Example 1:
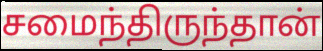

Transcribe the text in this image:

சமைந்திருந்தான்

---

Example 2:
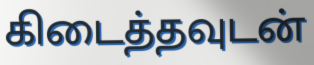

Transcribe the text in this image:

கிடைத்தவுடன்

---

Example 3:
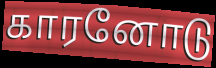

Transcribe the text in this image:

காரனோடு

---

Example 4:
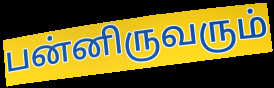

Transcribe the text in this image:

பன்னிருவரும்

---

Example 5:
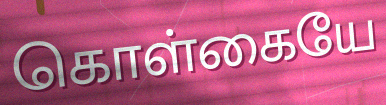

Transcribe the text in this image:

கொள்கையே